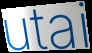
utai